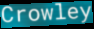
Crowley